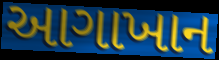
આગાખાન